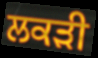
ਲਕੜੀ